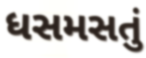
ધસમસતું